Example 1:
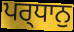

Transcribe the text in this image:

ਪਰ੍ਧਾਨੁ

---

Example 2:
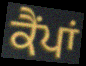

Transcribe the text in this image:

ਕੈੰਪਾਂ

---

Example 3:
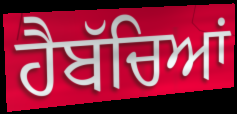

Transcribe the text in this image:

ਹੈਬੱਚਿਆਂ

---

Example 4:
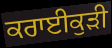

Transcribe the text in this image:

ਕਰਾਈਕੁੜੀ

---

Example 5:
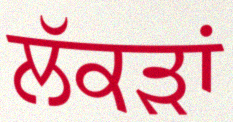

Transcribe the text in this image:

ਲੱਕੜਾਂ